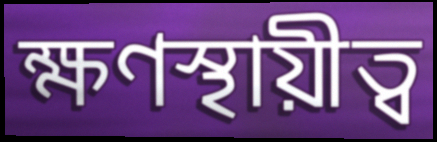
ক্ষণস্থায়ীত্ব